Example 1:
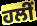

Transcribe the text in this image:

ਹਲੀਂ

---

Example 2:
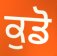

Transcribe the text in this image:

ਕੁਡੋ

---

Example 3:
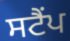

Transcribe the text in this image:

ਸਟੈਂਪ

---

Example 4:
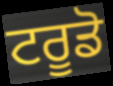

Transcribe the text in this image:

ਟਰੂਡੋ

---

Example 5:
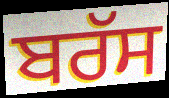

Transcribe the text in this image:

ਬਰੱਸ